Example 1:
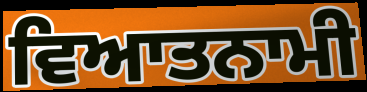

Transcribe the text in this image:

ਵਿਆਤਨਾਮੀ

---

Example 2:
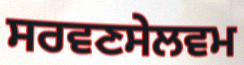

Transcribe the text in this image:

ਸਰਵਣਸੇਲਵਮ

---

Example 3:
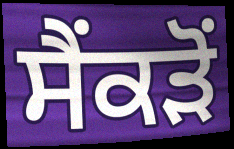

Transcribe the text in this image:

ਸੈਂਕੜੋਂ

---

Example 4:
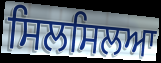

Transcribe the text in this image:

ਸਿਲਸਿਲਆ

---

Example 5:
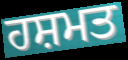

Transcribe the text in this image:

ਹਸ਼ਮਤ